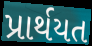
પ્રાર્થયત